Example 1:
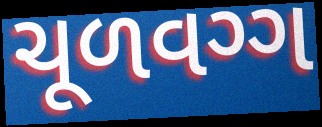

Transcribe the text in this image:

ચૂળવગ્ગ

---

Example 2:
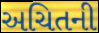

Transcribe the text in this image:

અચિતની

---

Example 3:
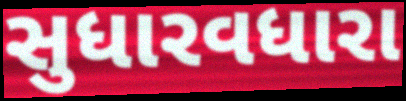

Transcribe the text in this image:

સુધારવધારા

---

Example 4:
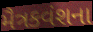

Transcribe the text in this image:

મૈત્રકવંશના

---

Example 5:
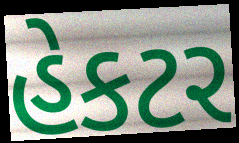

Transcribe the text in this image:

હેકટર